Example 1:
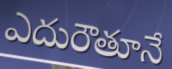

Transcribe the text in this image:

ఎదురౌతూనే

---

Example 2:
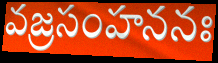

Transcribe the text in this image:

వజ్రసంహననః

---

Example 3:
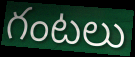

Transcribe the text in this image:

గంటలు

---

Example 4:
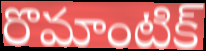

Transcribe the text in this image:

రొమాంటిక్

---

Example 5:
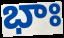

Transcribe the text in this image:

భాః